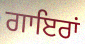
ਗਾਇਰਾਂ